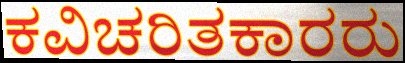
ಕವಿಚರಿತಕಾರರು